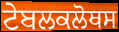
ਟੇਬਲਕਲੋਥਸ